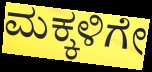
ಮಕ್ಕಳಿಗೇ